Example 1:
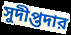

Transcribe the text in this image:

সুদীপ্তদার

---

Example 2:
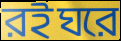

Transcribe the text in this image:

রইঘরে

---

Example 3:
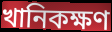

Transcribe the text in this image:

খানিকক্ষণ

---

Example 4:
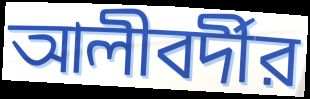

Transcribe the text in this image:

আলীবর্দীর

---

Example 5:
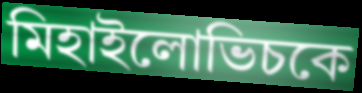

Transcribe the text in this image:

মিহাইলোভিচকে